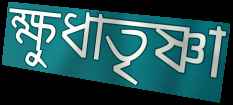
ক্ষুধাতৃষ্ণা